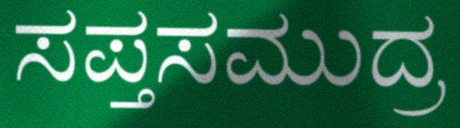
ಸಪ್ತಸಮುದ್ರ